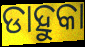
ଡାହୁକା